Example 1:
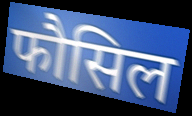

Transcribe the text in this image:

फौसिल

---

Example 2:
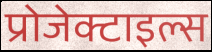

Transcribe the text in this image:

प्रोजेक्टाइल्स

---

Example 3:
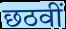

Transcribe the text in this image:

छठवीं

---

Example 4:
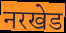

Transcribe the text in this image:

नरखेड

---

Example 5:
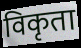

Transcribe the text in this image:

विकृता